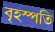
বৃহস্পতি